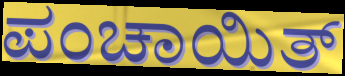
ಪಂಚಾಯಿತ್